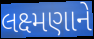
લક્ષ્મણાને